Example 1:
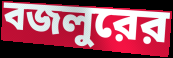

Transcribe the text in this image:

বজলুরের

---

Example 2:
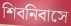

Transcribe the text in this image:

শিবনিবাসে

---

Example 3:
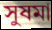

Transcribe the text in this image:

সুষমা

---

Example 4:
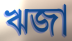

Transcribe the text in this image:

ঋজা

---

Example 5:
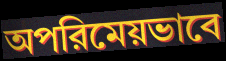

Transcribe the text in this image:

অপরিমেয়ভাবে